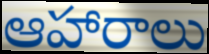
ఆహారాలు